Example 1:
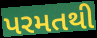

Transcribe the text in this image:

પરમતથી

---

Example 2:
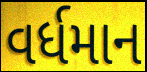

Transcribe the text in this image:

વર્ધમાન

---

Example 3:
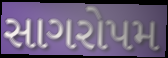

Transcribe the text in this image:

સાગરોપમ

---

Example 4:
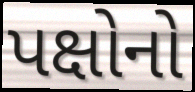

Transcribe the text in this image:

પક્ષોનો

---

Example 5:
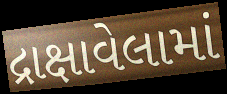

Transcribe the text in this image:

દ્રાક્ષાવેલામાં